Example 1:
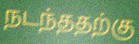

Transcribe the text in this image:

நடந்ததற்கு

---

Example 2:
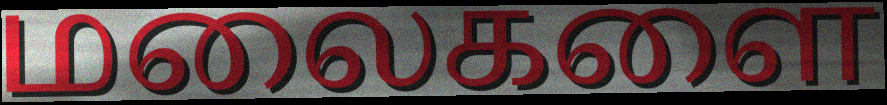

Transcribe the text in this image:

மலைகளை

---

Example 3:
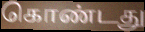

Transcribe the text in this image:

கொண்டது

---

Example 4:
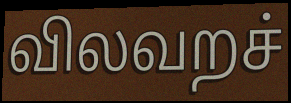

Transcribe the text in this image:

விலவறச்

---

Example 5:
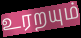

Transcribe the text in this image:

உரறயும்